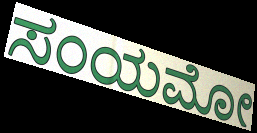
ಸಂಯಮೋ